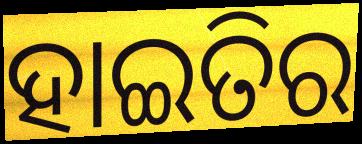
ହାଇତିର